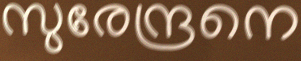
സുരേന്ദ്രനെ